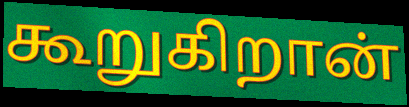
கூறுகிறான்